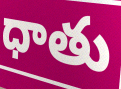
ధాతు